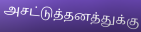
அசட்டுத்தனத்துக்கு